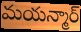
మయన్మార్